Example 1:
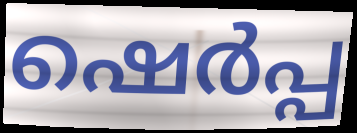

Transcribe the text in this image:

ഷെർപ്പ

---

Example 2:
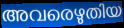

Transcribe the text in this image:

അവരെഴുതിയ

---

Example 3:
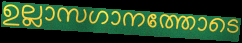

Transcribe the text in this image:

ഉല്ലാസഗാനത്തോടെ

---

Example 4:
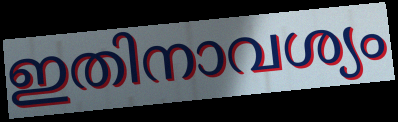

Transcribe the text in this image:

ഇതിനാവശ്യം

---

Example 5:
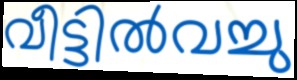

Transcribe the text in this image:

വീട്ടിൽവച്ചു